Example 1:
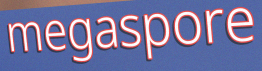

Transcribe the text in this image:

megaspore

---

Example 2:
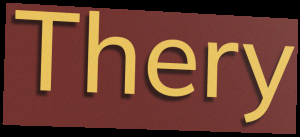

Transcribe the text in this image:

Thery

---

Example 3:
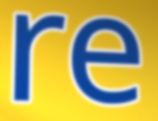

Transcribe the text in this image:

re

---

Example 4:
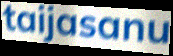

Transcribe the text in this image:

taijasanu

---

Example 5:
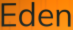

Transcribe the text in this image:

Eden